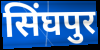
सिंघपुर